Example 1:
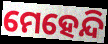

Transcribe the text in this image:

ମେହେନ୍ଦି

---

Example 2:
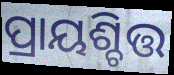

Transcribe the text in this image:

ପ୍ରାୟଶ୍ଚିତ୍ତ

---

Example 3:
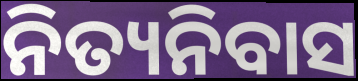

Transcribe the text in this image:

ନିତ୍ୟନିବାସ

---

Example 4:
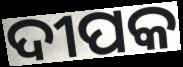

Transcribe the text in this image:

ଦୀପକ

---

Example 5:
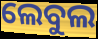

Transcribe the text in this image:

ଲେବୁଲ